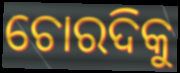
ଚୋରଦିକୁ